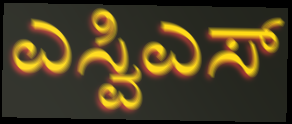
ಎಸ್ವಿಎಸ್